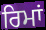
ਰਿਮਾਂ